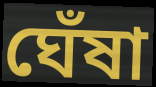
ঘেঁষা